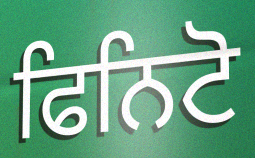
ਫਿਨਿਟੋ